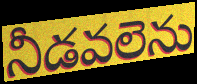
నీడవలెను